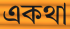
একথা